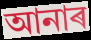
আনাৰ